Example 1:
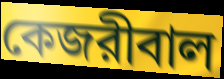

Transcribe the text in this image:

কেজরীবাল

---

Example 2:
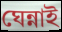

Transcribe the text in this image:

ঘেন্নাই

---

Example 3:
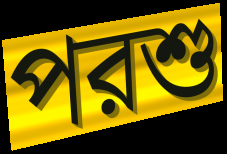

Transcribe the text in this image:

পরশু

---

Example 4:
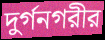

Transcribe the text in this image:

দুর্গনগরীর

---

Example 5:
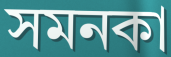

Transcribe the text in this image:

সমনকা